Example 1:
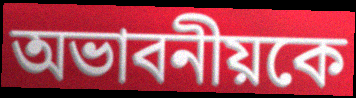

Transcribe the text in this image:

অভাবনীয়কে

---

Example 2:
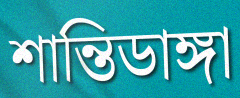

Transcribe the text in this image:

শান্তিডাঙ্গা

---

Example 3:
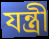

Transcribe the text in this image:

যন্ত্রী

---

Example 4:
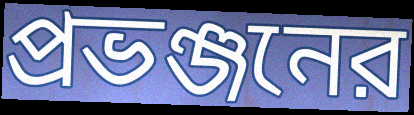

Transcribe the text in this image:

প্রভঞ্জনের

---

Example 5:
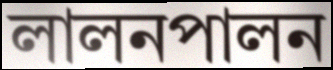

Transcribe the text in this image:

লালনপালন